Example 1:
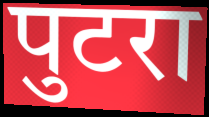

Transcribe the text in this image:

पुटरा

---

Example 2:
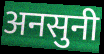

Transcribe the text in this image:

अनसुनी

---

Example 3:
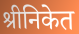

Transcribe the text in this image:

श्रीनिकेत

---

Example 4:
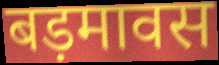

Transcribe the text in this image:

बड़मावस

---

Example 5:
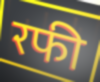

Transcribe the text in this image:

रफी